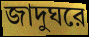
জাদুঘরে